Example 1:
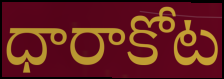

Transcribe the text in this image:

ధారాకోట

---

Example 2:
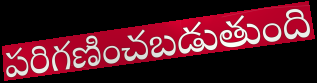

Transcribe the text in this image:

పరిగణించబడుతుంది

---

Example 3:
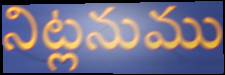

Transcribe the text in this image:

నిట్లనుము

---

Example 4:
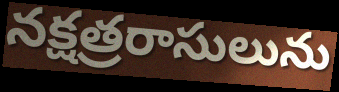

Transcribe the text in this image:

నక్షత్రరాసులును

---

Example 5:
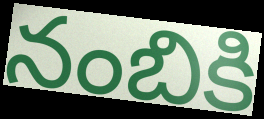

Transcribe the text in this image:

నంబికి